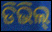
ଡିଭିଲ୍